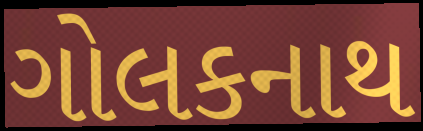
ગોલકનાથ